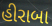
હીરાબા